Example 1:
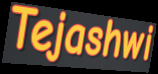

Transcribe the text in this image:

Tejashwi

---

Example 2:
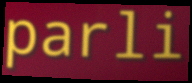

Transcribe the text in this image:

parli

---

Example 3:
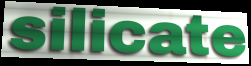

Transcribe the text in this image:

silicate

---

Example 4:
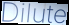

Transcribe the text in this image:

Dilute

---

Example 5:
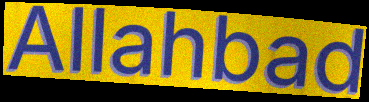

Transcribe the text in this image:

Allahbad